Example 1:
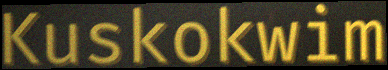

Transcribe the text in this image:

Kuskokwim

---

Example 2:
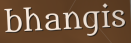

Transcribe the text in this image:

bhangis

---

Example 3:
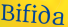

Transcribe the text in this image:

Bifida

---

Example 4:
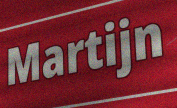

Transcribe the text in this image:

Martijn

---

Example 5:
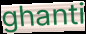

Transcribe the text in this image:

ghanti